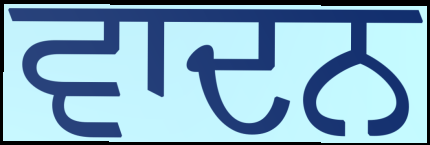
ਵਾਦਨ